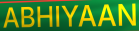
ABHIYAAN